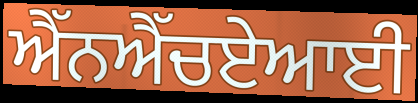
ਐੱਨਐੱਚਏਆਈ